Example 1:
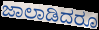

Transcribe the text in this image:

ಜಾಲಾಡಿದರೂ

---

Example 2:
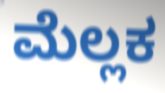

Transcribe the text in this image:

ಮೆಲ್ಲಕ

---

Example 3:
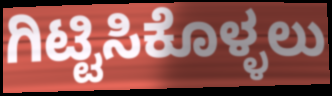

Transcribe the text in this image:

ಗಿಟ್ಟಿಸಿಕೊಳ್ಳಲು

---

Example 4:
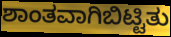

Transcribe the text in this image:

ಶಾಂತವಾಗಿಬಿಟ್ಟಿತು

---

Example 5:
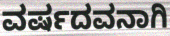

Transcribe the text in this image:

ವರ್ಷದವನಾಗಿ